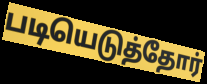
படியெடுத்தோர்